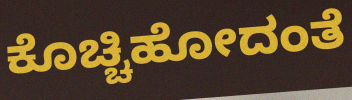
ಕೊಚ್ಚಿಹೋದಂತೆ